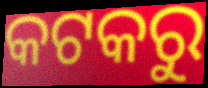
କଟକରୁ